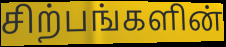
சிற்பங்களின்